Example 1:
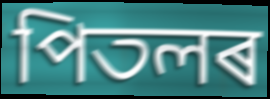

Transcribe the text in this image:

পিতলৰ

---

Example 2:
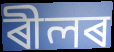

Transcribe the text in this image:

ৰীলৰ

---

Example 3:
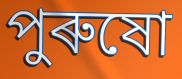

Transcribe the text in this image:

পুৰুষো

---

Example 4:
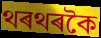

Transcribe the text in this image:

থৰথৰকৈ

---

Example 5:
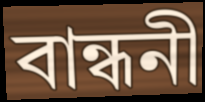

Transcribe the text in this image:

বান্ধনী